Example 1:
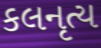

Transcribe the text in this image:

કલનૃત્ય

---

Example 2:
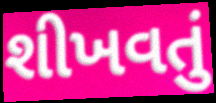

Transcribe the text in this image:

શીખવતું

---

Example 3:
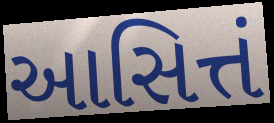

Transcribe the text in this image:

આસિત્તં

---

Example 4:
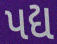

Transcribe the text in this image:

પદ્ય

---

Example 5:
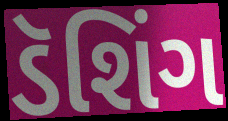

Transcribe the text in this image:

ડૅશિંગ